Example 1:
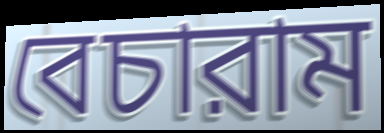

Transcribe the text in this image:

বেচারাম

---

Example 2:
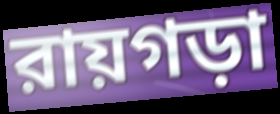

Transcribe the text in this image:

রায়গড়া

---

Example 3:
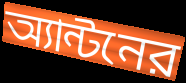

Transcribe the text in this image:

অ্যান্টনের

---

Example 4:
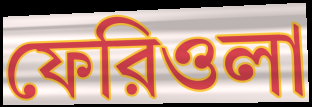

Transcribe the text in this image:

ফেরিওলা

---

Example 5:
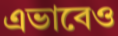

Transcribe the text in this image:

এভাবেও